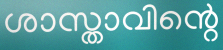
ശാസ്താവിന്റെ